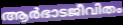
ആർഭാടജീവിതം